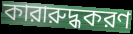
কারারুদ্ধকরণ